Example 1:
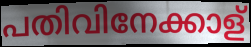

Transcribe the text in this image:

പതിവിനേക്കാള്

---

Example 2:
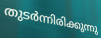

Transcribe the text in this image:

തുടർന്നിരിക്കുന്നു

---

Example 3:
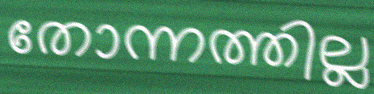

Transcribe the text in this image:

തോന്നത്തില്ല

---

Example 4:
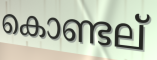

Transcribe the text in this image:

കൊണ്ടല്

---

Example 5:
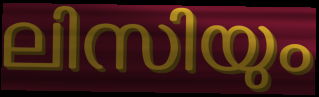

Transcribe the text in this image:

ലിസിയും